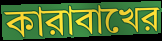
কারাবাখের